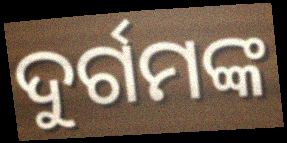
ଦୁର୍ଗମଙ୍କ